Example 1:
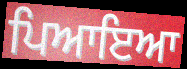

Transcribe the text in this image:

ਪਿਆਇਆ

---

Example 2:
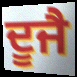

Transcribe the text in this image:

ਦੂਜੈ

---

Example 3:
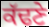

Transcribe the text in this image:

ਕੱਢਣੇ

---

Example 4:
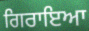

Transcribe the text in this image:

ਗਿਰਾਇਆ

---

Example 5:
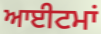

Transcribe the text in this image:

ਆਈਟਮਾਂ